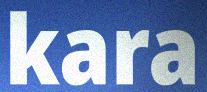
kara